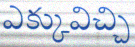
ఎక్కువిచ్చి